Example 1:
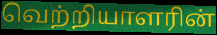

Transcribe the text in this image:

வெற்றியாளரின்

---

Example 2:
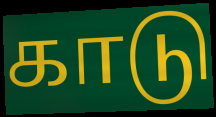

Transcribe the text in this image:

காடு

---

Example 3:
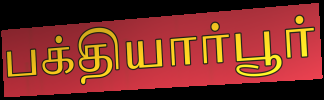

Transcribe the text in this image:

பக்தியார்பூர்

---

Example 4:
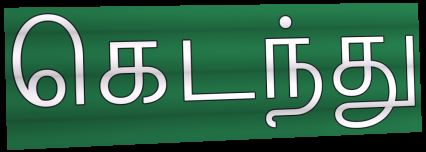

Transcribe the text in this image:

கெடந்து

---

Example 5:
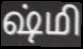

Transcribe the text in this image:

ஷ்மி